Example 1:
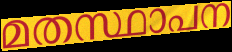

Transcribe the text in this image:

മതസ്ഥാപന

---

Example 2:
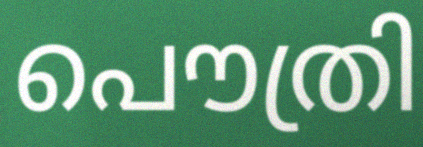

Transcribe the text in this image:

പൌത്രി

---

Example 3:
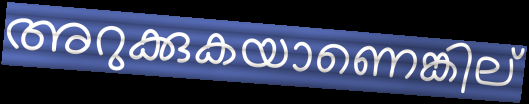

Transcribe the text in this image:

അറുക്കുകയാണെങ്കില്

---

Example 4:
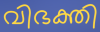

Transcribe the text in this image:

വിഭക്തി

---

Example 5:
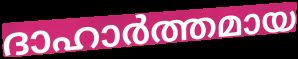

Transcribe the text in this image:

ദാഹാർത്തമായ